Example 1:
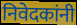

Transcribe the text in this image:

निवेदकांनी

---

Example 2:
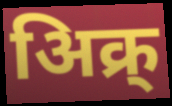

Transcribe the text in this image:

अिक्र्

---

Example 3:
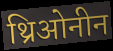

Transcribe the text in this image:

थ्रिओनीन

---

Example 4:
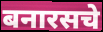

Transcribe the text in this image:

बनारसचे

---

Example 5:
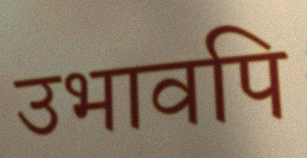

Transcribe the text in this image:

उभावपि